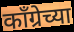
काँग्रेच्या